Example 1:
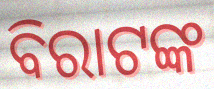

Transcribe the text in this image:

ବିରାଟଙ୍କ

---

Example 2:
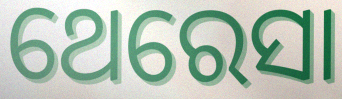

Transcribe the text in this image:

ଥେରେସା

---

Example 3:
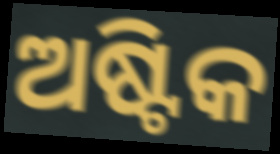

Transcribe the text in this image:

ଅଷ୍ଟିକ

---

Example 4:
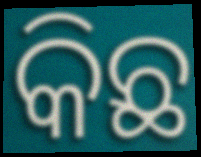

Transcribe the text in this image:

କିଛ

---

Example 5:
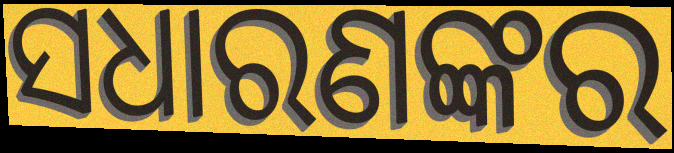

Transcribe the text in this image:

ସଧାରଣଙ୍କର